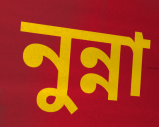
নুন্না